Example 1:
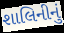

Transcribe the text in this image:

શાલિનીનું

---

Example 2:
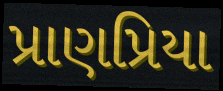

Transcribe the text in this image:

પ્રાણપ્રિયા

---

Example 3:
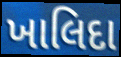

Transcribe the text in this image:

ખાલિદા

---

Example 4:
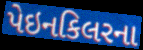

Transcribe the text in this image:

પેઇનકિલરના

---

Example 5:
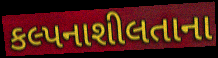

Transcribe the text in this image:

કલ્પનાશીલતાના